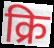
क्रि